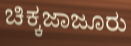
ಚಿಕ್ಕಜಾಜೂರು